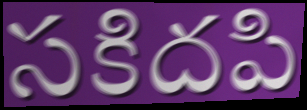
సకిదపి